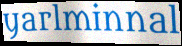
yarlminnal